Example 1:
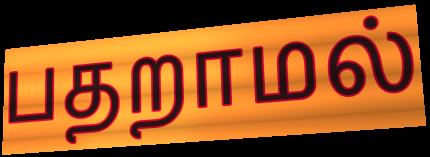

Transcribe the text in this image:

பதறாமல்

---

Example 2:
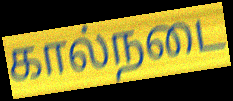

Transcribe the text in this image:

கால்நடை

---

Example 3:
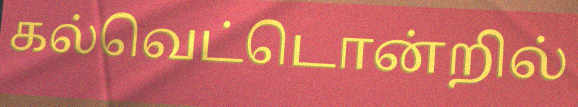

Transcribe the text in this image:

கல்வெட்டொன்றில்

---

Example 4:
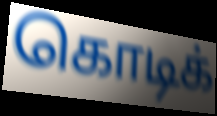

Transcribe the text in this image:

கொடிக்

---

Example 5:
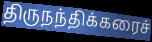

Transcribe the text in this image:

திருநந்திக்கரைச்